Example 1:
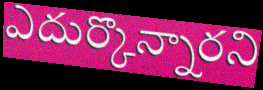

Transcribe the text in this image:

ఎదుర్కొన్నారని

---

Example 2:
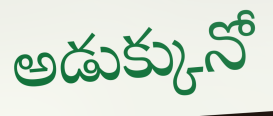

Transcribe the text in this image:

అడుక్కునో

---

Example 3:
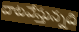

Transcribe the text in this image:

దాటవేస్తున్నది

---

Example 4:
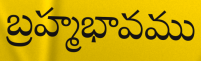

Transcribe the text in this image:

బ్రహ్మభావము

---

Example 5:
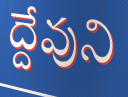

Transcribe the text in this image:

ద్దేవుని